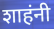
शाहंनी